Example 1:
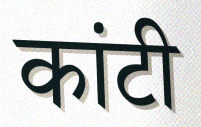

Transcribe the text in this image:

कांटी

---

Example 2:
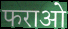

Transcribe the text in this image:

फराओ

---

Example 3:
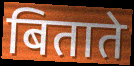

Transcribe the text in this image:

बिताते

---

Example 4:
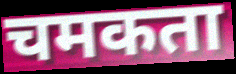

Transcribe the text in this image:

चमकता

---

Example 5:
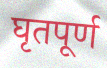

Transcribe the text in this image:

घृतपूर्ण